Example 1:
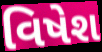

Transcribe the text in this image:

વિષેશ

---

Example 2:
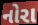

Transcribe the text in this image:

નોરા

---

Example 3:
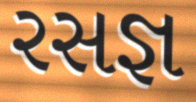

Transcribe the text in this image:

રસજ્ઞ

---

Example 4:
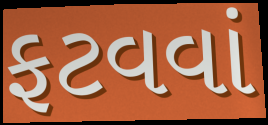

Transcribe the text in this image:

ફટવવાં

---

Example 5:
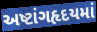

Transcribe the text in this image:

અષ્ટાંગહૃદયમાં